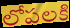
లోపలకి